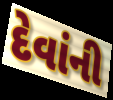
દેવાંની